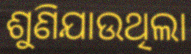
ଶୁଣିଯାଉଥିଲା